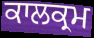
ਕਾਲਕ੍ਰਮ